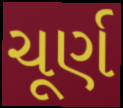
ચૂર્ણ